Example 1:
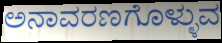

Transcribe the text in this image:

ಅನಾವರಣಗೊಳ್ಳುವ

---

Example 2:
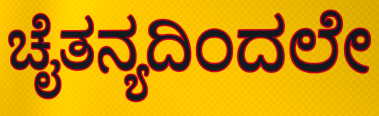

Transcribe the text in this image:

ಚೈತನ್ಯದಿಂದಲೇ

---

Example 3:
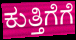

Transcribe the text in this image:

ಕುತ್ತಿಗೆಗೆ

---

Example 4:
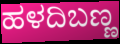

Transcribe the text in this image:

ಹಳದಿಬಣ್ಣ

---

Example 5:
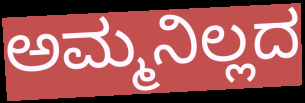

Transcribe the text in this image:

ಅಮ್ಮನಿಲ್ಲದ